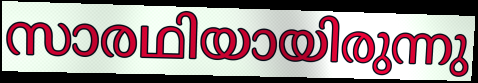
സാരഥിയായിരുന്നു